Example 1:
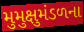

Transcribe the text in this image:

મુમુક્ષુમંડળના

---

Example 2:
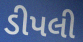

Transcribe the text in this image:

ડીપલી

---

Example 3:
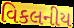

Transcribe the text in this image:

વિકલનીય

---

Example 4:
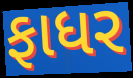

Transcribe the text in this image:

ફાધર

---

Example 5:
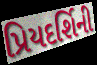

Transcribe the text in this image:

પ્રિયદર્શિની